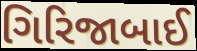
ગિરિજાબાઈ